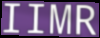
IIMR